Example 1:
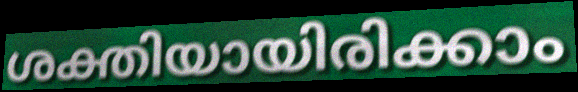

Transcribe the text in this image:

ശക്തിയായിരിക്കാം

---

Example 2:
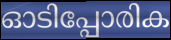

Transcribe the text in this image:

ഓടിപ്പോരിക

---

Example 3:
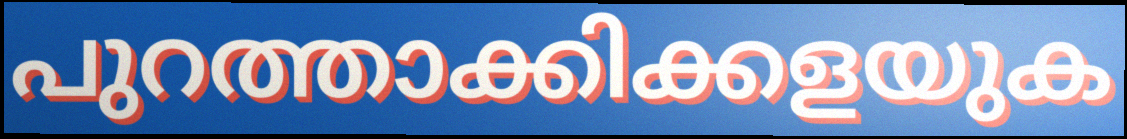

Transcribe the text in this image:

പുറത്താക്കിക്കളയുക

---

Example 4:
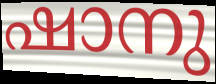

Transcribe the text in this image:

ഷാനു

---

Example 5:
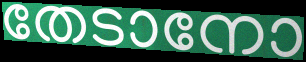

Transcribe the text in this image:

തേടാനോ